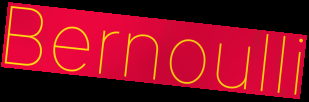
Bernoulli